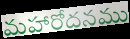
మహారోదనము